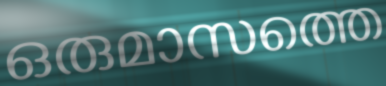
ഒരുമാസത്തെ